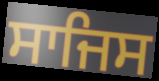
ਸਾਜਿਸ